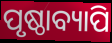
ପୃଷ୍ଠାବ୍ୟାପି